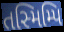
તસ્મિમ્પિ